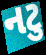
નટુ